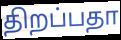
திறப்பதா